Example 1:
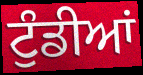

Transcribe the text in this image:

ਟੁੰਡੀਆਂ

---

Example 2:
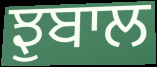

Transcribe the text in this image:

ਝੁਬਾਲ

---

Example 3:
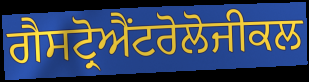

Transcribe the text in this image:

ਗੈਸਟ੍ਰੋਐਂਟਰੋਲੋਜੀਕਲ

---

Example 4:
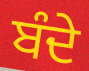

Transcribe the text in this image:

ਬੰਦੇ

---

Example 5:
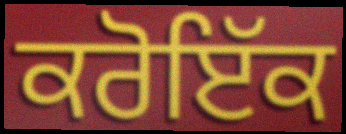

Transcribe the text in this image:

ਕਰੋਇੱਕ